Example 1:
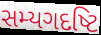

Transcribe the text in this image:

સમ્યગદષ્ટિ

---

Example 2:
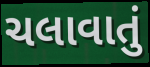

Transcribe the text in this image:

ચલાવાતું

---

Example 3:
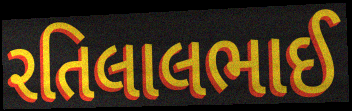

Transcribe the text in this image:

રતિલાલભાઈ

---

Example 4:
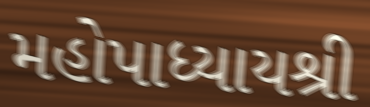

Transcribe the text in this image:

મહોપાધ્યાયશ્રી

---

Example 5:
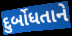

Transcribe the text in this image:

દુર્બોધતાને